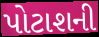
પોટાશની